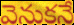
వెనుకనే